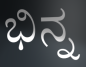
ಭಿನ್ನ